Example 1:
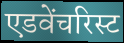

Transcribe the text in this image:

एडवेंचरिस्ट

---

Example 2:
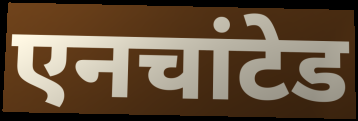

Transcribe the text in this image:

एनचांटेड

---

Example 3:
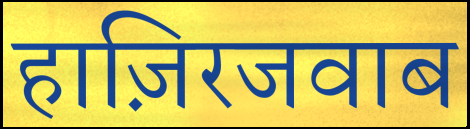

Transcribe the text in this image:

हाज़िरजवाब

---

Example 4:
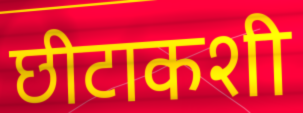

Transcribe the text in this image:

छीटाकशी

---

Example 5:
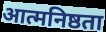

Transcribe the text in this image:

आत्मनिष्ठता